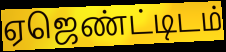
ஏஜெண்ட்டிடம்